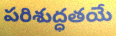
పరిశుద్ధతయే